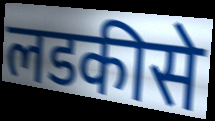
लडकीसे